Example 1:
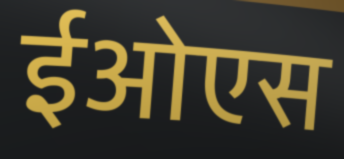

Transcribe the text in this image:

ईओएस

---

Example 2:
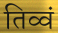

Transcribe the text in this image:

तिव्वं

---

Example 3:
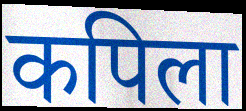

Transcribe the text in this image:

कपिला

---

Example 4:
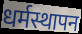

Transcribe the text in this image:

धर्मस्थापन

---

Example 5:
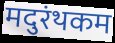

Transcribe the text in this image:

मदुरंथकम